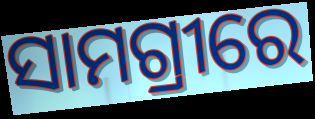
ସାମଗ୍ରୀରେ